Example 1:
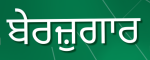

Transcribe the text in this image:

ਬੇਰਜ਼ੁਗਾਰ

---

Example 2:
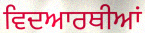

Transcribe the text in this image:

ਵਿਦਆਰਥੀਆਂ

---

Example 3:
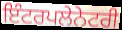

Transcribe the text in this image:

ਇੰਟਰਪਲੇਨੇਟਰੀ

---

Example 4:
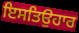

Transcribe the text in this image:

ਇਸਤਿਉਹਾਰ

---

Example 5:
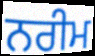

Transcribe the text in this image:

ਨਰੀਮ